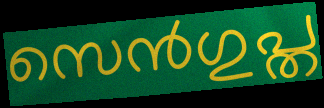
സെൻഗുപ്ത